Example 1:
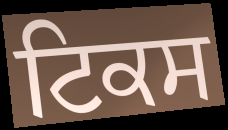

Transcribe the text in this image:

ਟਿਕਸ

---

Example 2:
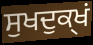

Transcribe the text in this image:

ਸੁਖਦੁਕ੍ਖਂ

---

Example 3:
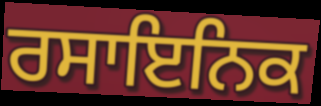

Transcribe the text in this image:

ਰਸਾਇਨਿਕ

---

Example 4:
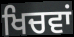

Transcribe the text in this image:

ਖਿਚਵਾਂ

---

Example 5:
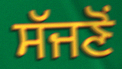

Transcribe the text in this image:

ਸੱਜਣੋਂ